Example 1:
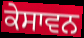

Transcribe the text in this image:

ਕੇਸਾਵਨ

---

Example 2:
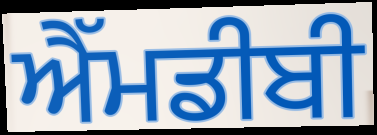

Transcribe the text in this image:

ਐੱਮਡੀਬੀ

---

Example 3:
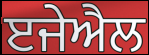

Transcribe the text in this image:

ੲਜੇਐਲ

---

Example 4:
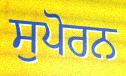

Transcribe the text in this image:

ਸੁਪੋਰਨ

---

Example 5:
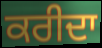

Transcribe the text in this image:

ਕਰੀਦਾ